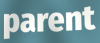
parent